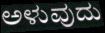
ಅಳುವುದು